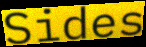
Sides